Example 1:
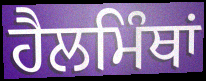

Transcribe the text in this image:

ਹੈਲਮਿੰਥਾਂ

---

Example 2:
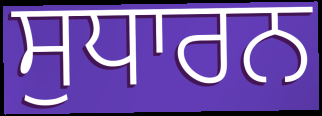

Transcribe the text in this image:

ਸੁਧਾਰਨ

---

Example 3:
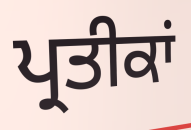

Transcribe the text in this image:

ਪ੍ਰਤੀਕਾਂ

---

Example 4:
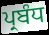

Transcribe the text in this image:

ਪ੍ਰਬੰਧ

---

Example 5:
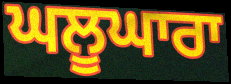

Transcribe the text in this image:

ਘਲੂਘਾਰਾ